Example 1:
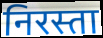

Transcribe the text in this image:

निरस्ता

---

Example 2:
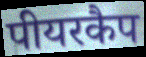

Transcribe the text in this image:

पीयरकैप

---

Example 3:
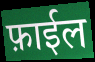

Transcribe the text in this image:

फ़ाईल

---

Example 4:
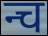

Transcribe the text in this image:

न्च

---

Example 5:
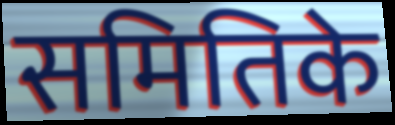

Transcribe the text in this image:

समितिके